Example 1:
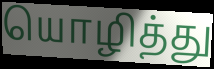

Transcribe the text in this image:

யொழித்து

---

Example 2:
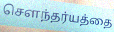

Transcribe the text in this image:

செளந்தர்யத்தை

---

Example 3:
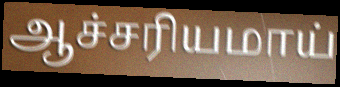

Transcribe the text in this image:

ஆச்சரியமாய்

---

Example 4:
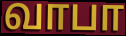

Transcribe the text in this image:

வாபா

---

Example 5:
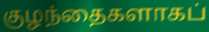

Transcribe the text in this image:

குழந்தைகளாகப்